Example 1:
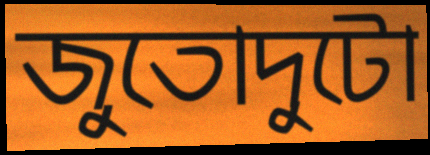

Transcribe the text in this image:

জুতোদুটো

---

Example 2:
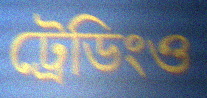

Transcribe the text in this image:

ট্রেডিংও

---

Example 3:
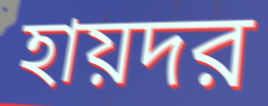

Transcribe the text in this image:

হায়দর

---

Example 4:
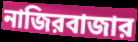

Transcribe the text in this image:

নাজিরবাজার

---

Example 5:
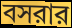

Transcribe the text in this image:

বসরার